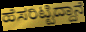
ಹೆಸರಿಟ್ಟಿದ್ದಾನೆ